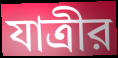
যাত্রীর